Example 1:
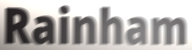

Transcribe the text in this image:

Rainham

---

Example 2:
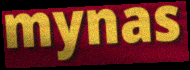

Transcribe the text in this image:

mynas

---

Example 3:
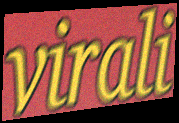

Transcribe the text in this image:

virali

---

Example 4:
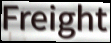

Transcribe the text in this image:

Freight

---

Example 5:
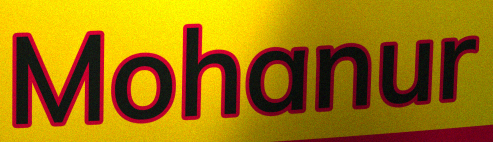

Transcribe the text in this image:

Mohanur